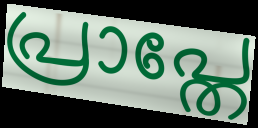
പ്രാപ്തേ